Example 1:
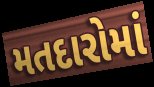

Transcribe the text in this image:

મતદારોમાં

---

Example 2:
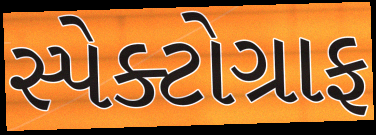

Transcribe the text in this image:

સ્પેક્ટોગ્રાફ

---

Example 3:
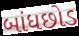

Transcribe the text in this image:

બાંધછોડ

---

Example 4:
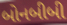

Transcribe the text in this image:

બોનબીબી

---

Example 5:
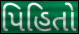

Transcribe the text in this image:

પિહિતો